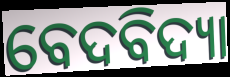
ବେଦବିଦ୍ୟା